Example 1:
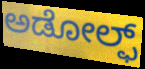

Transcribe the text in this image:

ಅಡೋಲ್ಫ್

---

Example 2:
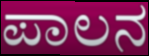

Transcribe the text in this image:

ಪಾಲನ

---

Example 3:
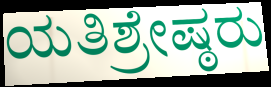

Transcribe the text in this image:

ಯತಿಶ್ರೇಷ್ಠರು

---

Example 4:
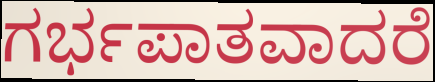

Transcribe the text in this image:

ಗರ್ಭಪಾತವಾದರೆ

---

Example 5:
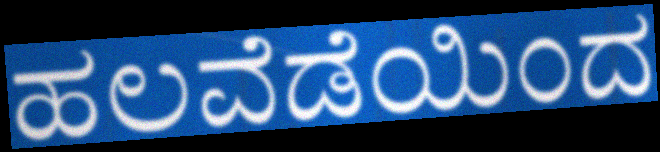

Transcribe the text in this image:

ಹಲವೆಡೆಯಿಂದ